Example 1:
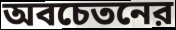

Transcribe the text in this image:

অবচেতনের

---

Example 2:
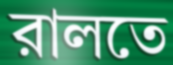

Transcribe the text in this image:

রালতে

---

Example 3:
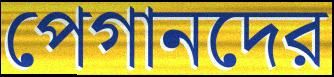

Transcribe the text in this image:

পেগানদের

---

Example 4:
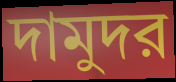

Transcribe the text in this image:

দামুদর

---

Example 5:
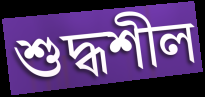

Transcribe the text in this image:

শুদ্ধশীল